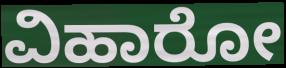
ವಿಹಾರೋ